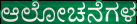
ಆಲೋಚನೆಗಳ